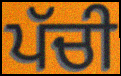
ਪੱਚੀ